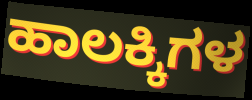
ಹಾಲಕ್ಕಿಗಳ